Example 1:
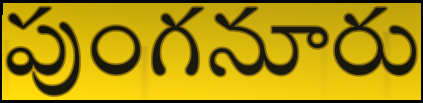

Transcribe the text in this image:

పుంగనూరు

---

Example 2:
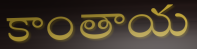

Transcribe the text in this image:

కాంతాయ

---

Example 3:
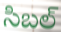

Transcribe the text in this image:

సిబల్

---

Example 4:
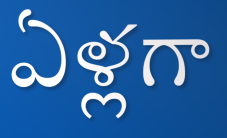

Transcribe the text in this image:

ఏళ్లగా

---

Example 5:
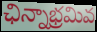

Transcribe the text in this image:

ఛిన్నాభ్రమివ